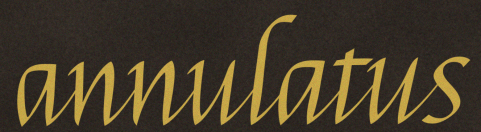
annulatus